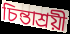
চিন্তাশ্রয়ী